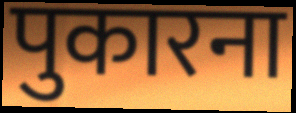
पुकारना